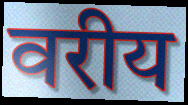
वरीय